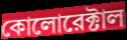
কোলোরেক্টাল